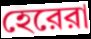
হেরেরা